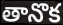
తానొక